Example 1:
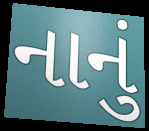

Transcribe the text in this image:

નાનું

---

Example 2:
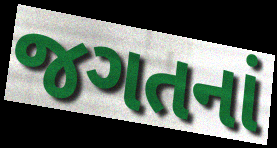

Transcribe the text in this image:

જગતનાં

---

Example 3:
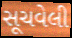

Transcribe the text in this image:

સૂચવેલી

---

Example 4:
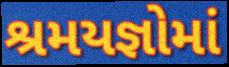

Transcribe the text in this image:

શ્રમયજ્ઞોમાં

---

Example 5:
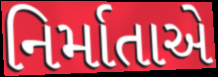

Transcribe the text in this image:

નિર્માતાએ